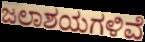
ಜಲಾಶಯಗಳಿವೆ